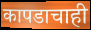
कापडाचाही